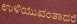
ಉಳಿಯುವಂತಾದರೆ